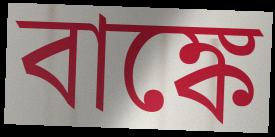
বাঙ্কে